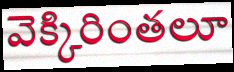
వెక్కిరింతలూ